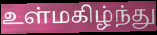
உள்மகிழ்ந்து